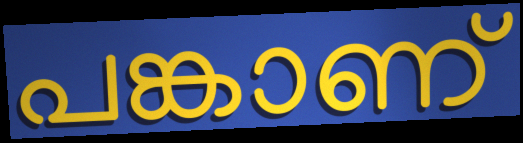
പങ്കാണ്